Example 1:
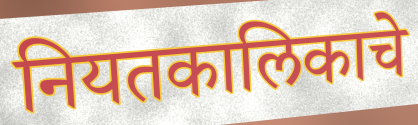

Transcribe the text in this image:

नियतकालिकाचे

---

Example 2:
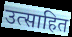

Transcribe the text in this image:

उत्साहित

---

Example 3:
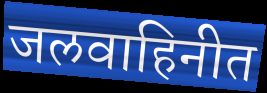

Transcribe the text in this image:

जलवाहिनीत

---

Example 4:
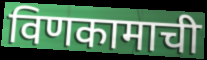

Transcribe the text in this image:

विणकामाची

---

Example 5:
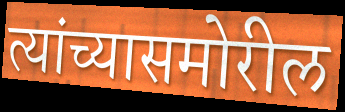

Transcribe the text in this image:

त्यांच्यासमोरील